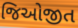
જિઓજીત